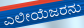
ಎಲೀಯೆಜರನು